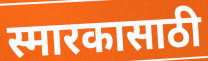
स्मारकासाठी